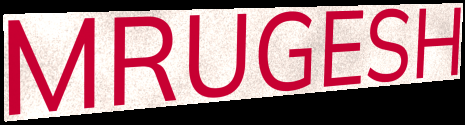
MRUGESH